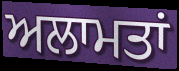
ਅਲਾਮਤਾਂ